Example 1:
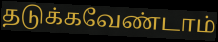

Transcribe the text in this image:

தடுக்கவேண்டாம்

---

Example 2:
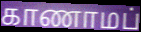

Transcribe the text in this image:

காணாமப்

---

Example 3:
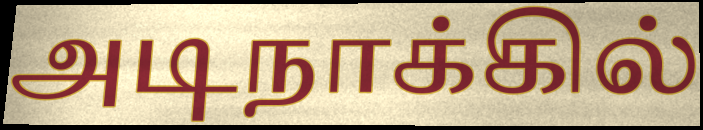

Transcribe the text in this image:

அடிநாக்கில்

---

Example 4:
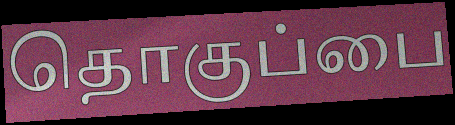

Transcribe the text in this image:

தொகுப்பை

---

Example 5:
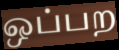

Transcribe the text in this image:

ஒப்பற